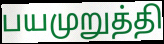
பயமுறுத்தி